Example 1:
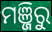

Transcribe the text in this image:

ମଞ୍ଜିରୁ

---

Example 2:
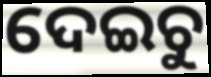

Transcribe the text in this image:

ଦେଇଚୁ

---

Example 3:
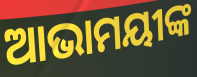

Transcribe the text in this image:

ଆଭାମୟୀଙ୍କ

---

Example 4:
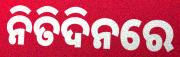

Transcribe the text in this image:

ନିତିଦିନରେ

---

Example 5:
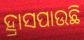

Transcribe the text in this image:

ହ୍ରାସପାଉଛି